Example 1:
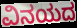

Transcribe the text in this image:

ವಿನಯದ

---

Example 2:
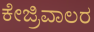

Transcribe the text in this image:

ಕೇಜ್ರಿವಾಲರ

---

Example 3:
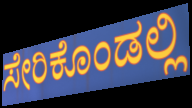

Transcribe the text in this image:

ಸೇರಿಕೊಂಡಲ್ಲಿ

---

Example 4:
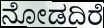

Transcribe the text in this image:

ನೋಡದಿರೆ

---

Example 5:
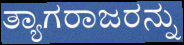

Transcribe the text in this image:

ತ್ಯಾಗರಾಜರನ್ನು